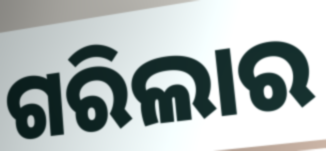
ଗରିଲାର